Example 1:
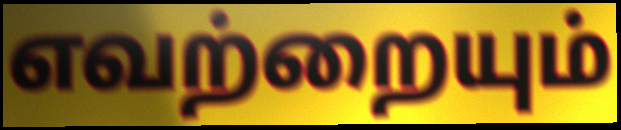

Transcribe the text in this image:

எவற்றையும்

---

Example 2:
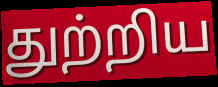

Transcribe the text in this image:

துற்றிய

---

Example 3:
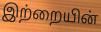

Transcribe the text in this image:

இற்றையின்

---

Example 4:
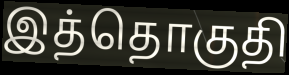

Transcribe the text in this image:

இத்தொகுதி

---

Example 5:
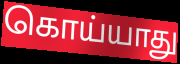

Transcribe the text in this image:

கொய்யாது